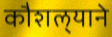
कौशल्याने